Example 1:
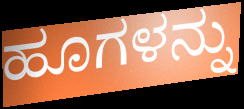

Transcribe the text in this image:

ಹೂಗಳನ್ನು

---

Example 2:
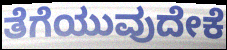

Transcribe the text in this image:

ತೆಗೆಯುವುದೇಕೆ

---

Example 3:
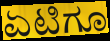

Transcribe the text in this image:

ಏಟಿಗೂ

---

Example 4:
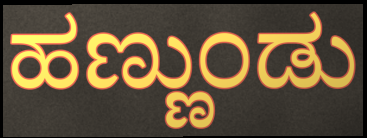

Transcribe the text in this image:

ಹಣ್ಣುಂಡು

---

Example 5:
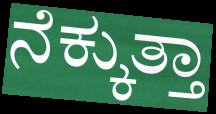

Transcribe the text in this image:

ನೆಕ್ಕುತ್ತಾ